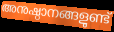
അനുഷ്ഠാനങ്ങളുണ്ട്